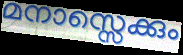
മനാസ്സെക്കും